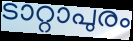
ടാറ്റാപുരം